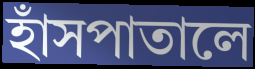
হাঁসপাতালে